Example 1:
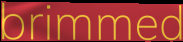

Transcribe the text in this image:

brimmed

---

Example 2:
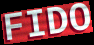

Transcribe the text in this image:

FIDO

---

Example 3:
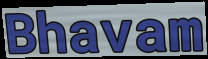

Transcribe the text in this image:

Bhavam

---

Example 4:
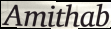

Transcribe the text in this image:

Amithab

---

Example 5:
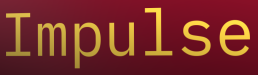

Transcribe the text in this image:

Impulse